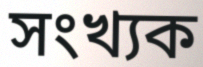
সংখ্যক